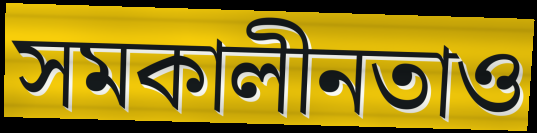
সমকালীনতাও